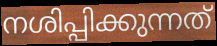
നശിപ്പിക്കുന്നത്